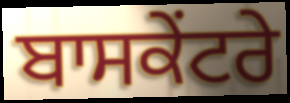
ਬਾਸਕੇਂਟਰੇ